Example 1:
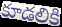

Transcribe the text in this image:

కూడలికి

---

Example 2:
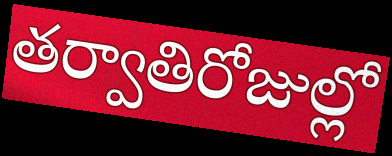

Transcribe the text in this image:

తర్వాతిరోజుల్లో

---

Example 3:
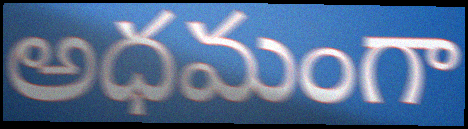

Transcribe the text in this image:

అధమంగా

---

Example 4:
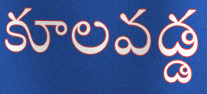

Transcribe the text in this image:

కూలవడ్డ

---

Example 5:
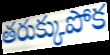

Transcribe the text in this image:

తరుక్కుపోక